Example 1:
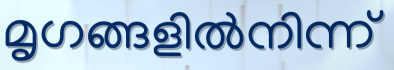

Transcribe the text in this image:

മൃഗങ്ങളിൽനിന്ന്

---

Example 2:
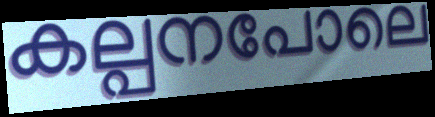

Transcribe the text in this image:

കല്പനപോലെ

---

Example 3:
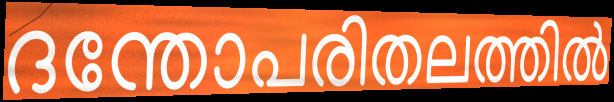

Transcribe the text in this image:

ദന്തോപരിതലത്തിൽ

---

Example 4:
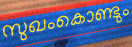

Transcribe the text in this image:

സുഖംകൊണ്ടും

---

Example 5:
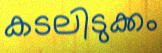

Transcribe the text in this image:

കടലിടുക്കം